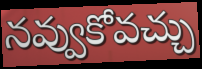
నవ్వుకోవచ్చు